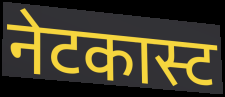
नेटकास्ट